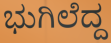
ಭುಗಿಲೆದ್ದ